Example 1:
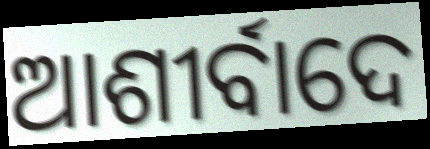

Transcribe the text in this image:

ଆଶୀର୍ବାଦେ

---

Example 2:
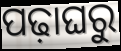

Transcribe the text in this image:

ପଢ଼ାଘରୁ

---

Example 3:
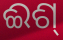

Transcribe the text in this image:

ଈଶ୍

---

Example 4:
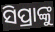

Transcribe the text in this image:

ସିପ୍ରାଙ୍କୁ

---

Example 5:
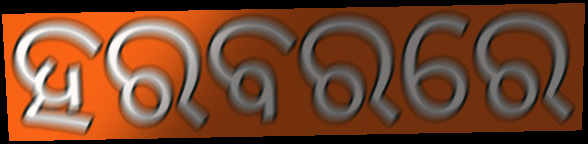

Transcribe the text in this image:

ହରବରରେ